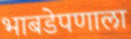
भाबडेपणाला